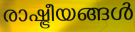
രാഷ്ട്രീയങ്ങൾ